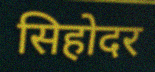
सिहोदर